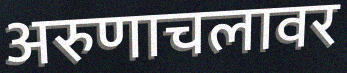
अरुणाचलावर